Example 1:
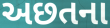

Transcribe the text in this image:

અછતના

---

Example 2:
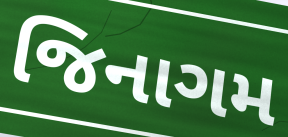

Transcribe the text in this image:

જિનાગમ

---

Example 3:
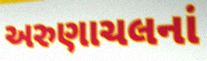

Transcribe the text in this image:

અરુણાચલનાં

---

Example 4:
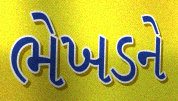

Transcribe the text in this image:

ભેખડને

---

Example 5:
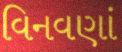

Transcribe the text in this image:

વિનવણાં